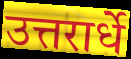
उत्तरार्धे